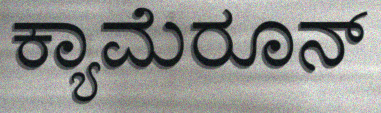
ಕ್ಯಾಮೆರೂನ್